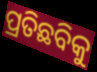
ପ୍ରତିଛବିକୁ